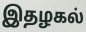
இதழகல்